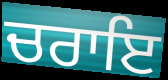
ਚਰਾਇ